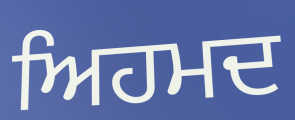
ਅਿਹਮਦ